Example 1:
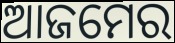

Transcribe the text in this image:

ଆଜମେର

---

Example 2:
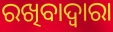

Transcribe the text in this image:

ରଖିବାଦ୍ୱାରା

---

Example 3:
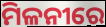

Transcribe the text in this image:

ମିଳନୀରେ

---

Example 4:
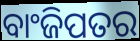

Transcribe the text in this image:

ବାଂଜିପତର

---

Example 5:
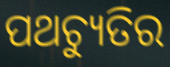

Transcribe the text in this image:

ପଥଚ୍ୟୁତିର